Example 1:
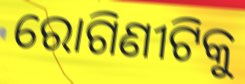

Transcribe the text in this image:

ରୋଗିଣୀଟିକୁ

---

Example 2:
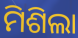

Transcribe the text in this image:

ମିଶିଲା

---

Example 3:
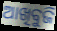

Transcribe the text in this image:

ଆଖିବୁଜି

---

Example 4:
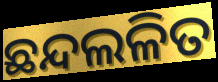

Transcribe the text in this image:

ଛନ୍ଦଲଳିତ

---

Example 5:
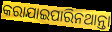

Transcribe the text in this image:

କରାଯାଇପାରିନଥାନ୍ତା